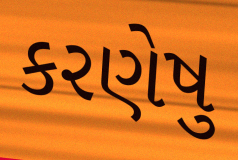
કરણેષુ